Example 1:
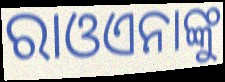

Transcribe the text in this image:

ରାଓଏନାଙ୍କୁ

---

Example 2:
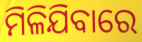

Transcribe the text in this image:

ମିଳିଯିବାରେ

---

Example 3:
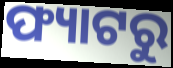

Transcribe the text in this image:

ଫ୍ୟାଟରୁ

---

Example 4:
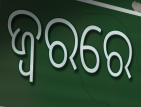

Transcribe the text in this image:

ଜ୍ବରରେ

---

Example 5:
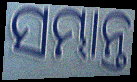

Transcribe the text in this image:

ସମ୍ଭାନ୍ତ